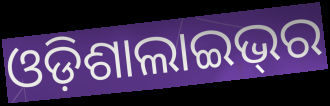
ଓଡ଼ିଶାଲାଇଭ୍‌ର